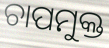
ଚାପମୁକ୍ତ